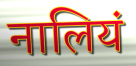
नालियं